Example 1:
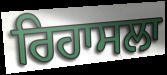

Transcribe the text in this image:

ਰਿਹਾਸਲਾ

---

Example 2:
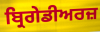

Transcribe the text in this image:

ਬ੍ਰਿਗੇਡੀਅਰਜ਼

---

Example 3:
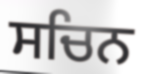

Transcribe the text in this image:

ਸਚਿਨ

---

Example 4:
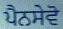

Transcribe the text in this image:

ਪੈਨਸੇਵੋ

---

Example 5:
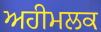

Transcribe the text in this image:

ਅਹੀਮਲਕ